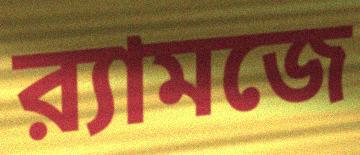
র‍্যামজে